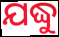
ଯଦ୍ଧୁ